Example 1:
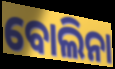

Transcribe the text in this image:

ବୋଲିନା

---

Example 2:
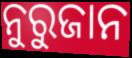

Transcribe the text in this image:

ନୁରୁଜାନ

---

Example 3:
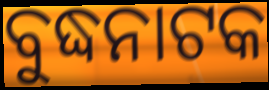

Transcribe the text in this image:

ବୁଦ୍ଧନାଟକ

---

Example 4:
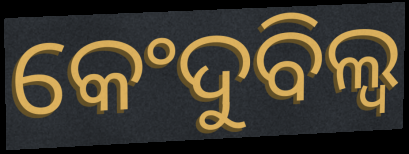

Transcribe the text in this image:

କେଂଦୁବିଲ୍ୱ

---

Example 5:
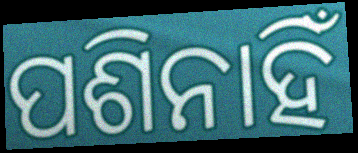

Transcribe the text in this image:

ପଶିନାହିଁ